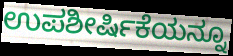
ಉಪಶೀರ್ಷಿಕೆಯನ್ನೂ